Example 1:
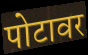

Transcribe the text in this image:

पोटावर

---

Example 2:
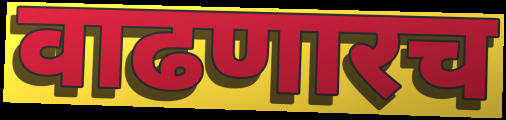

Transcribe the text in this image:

वाढणारच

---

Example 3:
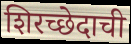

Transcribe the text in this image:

शिरच्छेदाची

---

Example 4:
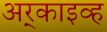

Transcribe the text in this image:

अर्काइव्ह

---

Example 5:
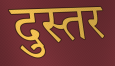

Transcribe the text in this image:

दुस्तर